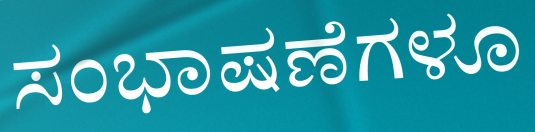
ಸಂಭಾಷಣೆಗಳೂ